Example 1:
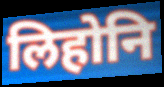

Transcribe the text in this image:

लिहोनि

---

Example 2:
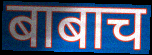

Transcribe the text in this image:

बाबाच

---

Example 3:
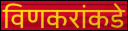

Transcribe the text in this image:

विणकरांकडे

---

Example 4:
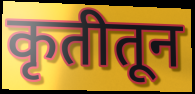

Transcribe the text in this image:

कृतीतून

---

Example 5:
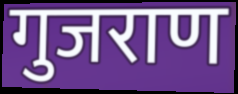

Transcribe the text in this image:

गुजराण